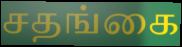
சதங்கை